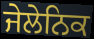
ਜੇਲੇਨਿਕ